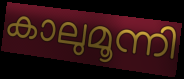
കാലുമൂന്നി